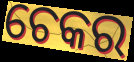
ଚେକର